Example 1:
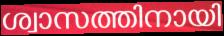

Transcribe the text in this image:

ശ്വാസത്തിനായി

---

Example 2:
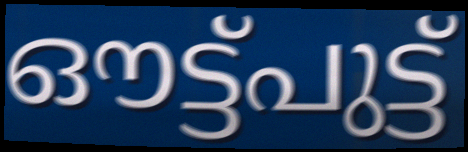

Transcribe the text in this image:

ഔട്ട്പുട്ട്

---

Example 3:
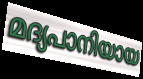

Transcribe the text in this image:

മദ്യപാനിയായ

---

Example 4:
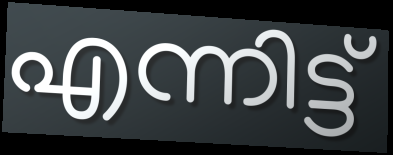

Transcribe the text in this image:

എന്നിട്ട്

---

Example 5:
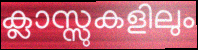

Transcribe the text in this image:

ക്ലാസ്സുകളിലും